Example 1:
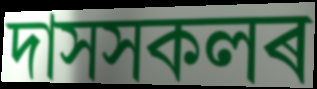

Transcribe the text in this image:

দাসসকলৰ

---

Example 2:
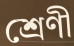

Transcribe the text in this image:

শ্ৰেণী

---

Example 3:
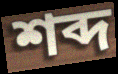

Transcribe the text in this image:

শব্দ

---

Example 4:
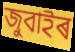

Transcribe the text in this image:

জুবাইৰ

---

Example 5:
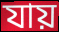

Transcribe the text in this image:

যায়